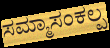
ಸಮ್ಮಾಸಂಕಲ್ಪ